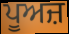
ਪੂਅਜ਼